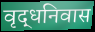
वृद्धनिवास